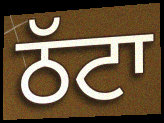
ਠੱਟਾ